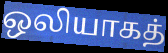
ஒலியாகத்